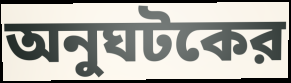
অনুঘটকের